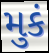
મુકં